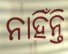
ନାହିଁନ୍ତି